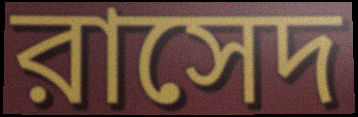
রাসেদ